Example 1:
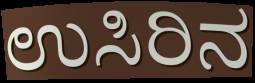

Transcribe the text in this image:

ಉಸಿರಿನ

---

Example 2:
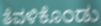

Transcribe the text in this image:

ತೆವಳಿಕೊಂಡು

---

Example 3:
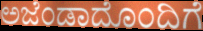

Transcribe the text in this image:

ಅಜೆಂಡಾದೊಂದಿಗೆ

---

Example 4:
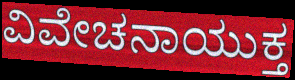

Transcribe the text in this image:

ವಿವೇಚನಾಯುಕ್ತ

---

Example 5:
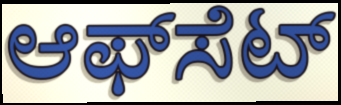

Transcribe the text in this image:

ಆಫ್‍ಸೆಟ್